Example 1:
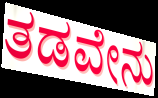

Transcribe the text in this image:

ತಡವೇನು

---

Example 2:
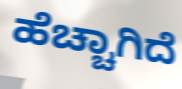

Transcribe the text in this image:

ಹೆಚ್ಚಾಗಿದೆ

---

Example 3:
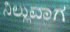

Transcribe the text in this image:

ನಿಲ್ಲುವಾಗ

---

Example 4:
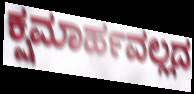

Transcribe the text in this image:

ಕ್ಷಮಾರ್ಹವಲ್ಲದ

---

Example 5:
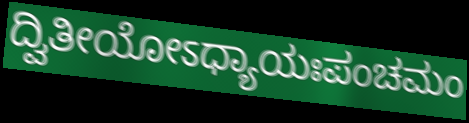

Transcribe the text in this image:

ದ್ವಿತೀಯೋಽಧ್ಯಾಯಃಪಂಚಮಂ